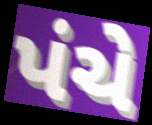
પંચે